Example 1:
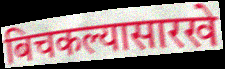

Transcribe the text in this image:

बिचकल्यासारखे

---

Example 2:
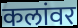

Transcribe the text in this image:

कलांवर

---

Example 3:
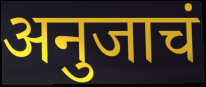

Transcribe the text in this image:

अनुजाचं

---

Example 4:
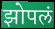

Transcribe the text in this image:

झोपलं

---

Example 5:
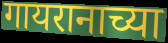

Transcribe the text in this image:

गायरानाच्या